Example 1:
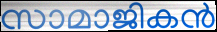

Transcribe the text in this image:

സാമാജികൻ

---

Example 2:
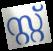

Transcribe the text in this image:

സ്റ്റ്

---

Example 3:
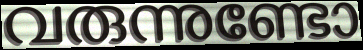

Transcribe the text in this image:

വരുന്നുണ്ടോ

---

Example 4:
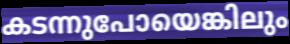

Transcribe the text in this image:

കടന്നുപോയെങ്കിലും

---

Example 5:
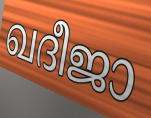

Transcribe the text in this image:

ഖദീജാ